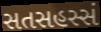
સતસહસ્સં